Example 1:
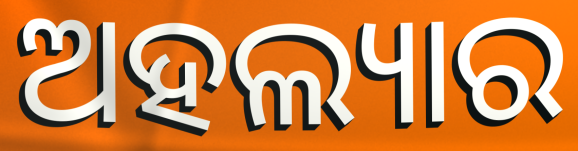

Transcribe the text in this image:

ଅହଲ୍ୟାର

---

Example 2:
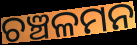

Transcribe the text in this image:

ଚଞ୍ଚଳମନ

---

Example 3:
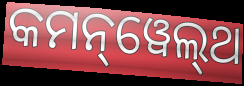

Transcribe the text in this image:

କମନ୍‌ୱେଲ୍‌ଥ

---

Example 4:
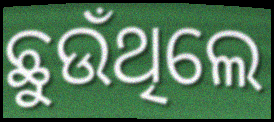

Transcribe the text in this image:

ଛୁଉଁଥିଲେ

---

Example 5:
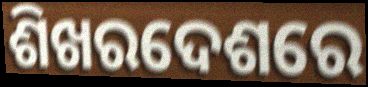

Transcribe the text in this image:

ଶିଖରଦେଶରେ